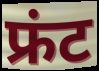
फ्रंट